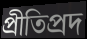
প্রীতিপ্রদ